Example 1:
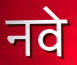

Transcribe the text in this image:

नवे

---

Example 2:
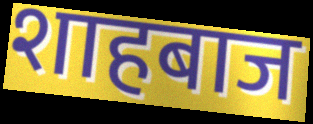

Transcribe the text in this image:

शाहबाज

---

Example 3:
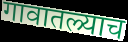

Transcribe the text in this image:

गावातल्याच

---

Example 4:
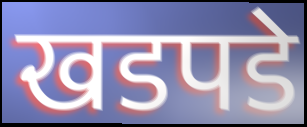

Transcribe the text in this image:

खडपडे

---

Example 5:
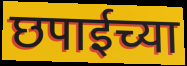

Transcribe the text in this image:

छपाईच्या